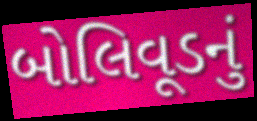
બોલિવૂડનું